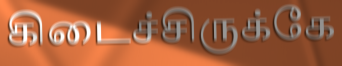
கிடைச்சிருக்கே